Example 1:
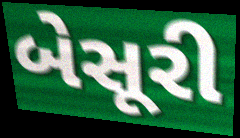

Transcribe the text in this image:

બેસૂરી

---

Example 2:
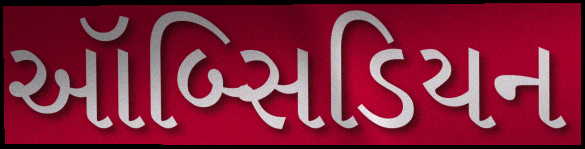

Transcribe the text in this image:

ઑબ્સિડિયન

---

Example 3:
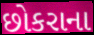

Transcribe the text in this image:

છોકરાના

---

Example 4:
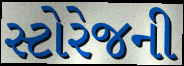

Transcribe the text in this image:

સ્ટોરેજની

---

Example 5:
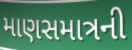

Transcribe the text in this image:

માણસમાત્રની